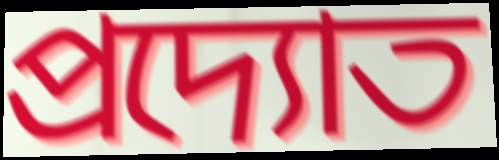
প্রদ্যোত